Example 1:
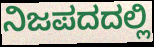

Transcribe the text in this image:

ನಿಜಪದದಲ್ಲಿ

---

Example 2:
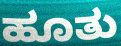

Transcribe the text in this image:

ಹೂತು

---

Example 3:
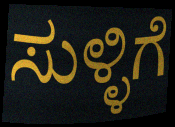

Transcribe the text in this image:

ಸುಳ್ಳಿಗೆ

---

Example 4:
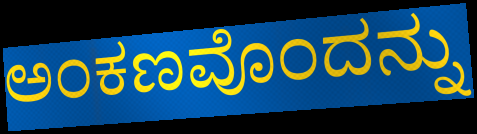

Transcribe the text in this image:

ಅಂಕಣವೊಂದನ್ನು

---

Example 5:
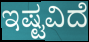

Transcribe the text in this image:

ಇಷ್ಟವಿದೆ